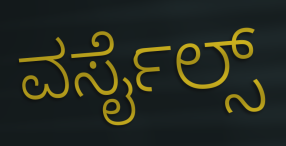
ವರ್ಸೈಲ್ಸ್